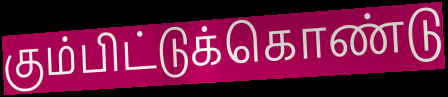
கும்பிட்டுக்கொண்டு